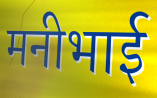
मनीभाई